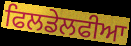
ਫਿਲਡੇਲਫੀਆ